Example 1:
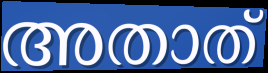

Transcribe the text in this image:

അതാത്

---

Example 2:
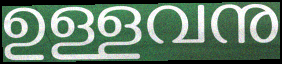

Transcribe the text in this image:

ഉള്ളവനു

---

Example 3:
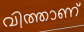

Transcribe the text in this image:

വിത്താണ്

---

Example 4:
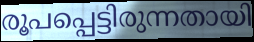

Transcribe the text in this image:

രൂപപ്പെട്ടിരുന്നതായി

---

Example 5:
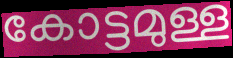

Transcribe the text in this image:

കോട്ടമുള്ള